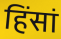
हिंसां